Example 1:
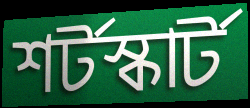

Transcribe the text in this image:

শর্টস্কার্ট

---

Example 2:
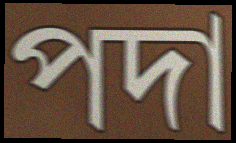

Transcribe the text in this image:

পদা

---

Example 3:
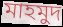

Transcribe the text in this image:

মাহমুদ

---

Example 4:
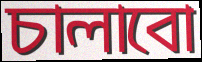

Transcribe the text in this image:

চালাবো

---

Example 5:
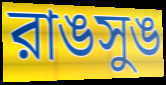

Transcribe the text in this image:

রাঙসুঙ